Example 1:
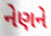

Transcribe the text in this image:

નેણને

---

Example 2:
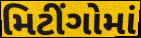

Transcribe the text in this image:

મિટીંગોમાં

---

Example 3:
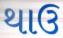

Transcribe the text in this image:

થાઉ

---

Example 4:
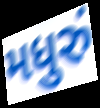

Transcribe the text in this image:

મધુરું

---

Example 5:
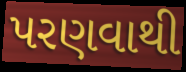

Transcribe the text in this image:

પરણવાથી